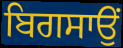
ਬਿਗਸਾਉਂ